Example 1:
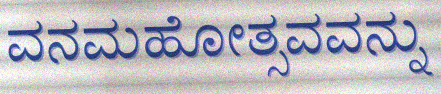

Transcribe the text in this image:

ವನಮಹೋತ್ಸವವನ್ನು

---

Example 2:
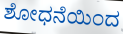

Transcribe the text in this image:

ಶೋಧನೆಯಿಂದ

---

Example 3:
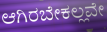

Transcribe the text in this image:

ಆಗಿರಬೇಕಲ್ಲವೇ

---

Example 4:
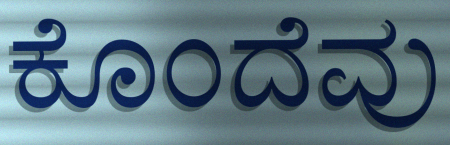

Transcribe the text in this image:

ಕೊಂದೆವು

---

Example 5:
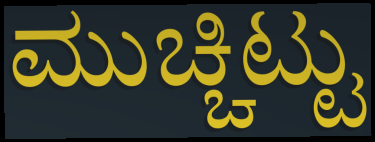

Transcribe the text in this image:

ಮುಚ್ಚಿಟ್ಟು